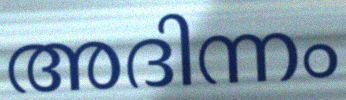
അദിന്നം